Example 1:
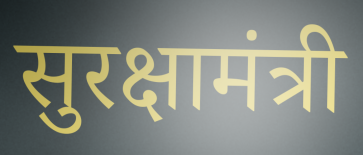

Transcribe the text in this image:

सुरक्षामंत्री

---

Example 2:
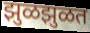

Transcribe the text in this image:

झुळझुळत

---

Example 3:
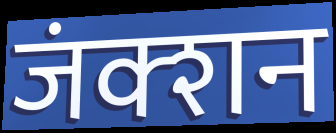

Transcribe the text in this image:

जंक्शन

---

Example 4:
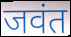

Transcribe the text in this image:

जवंत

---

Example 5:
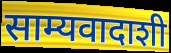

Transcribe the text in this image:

साम्यवादाशी